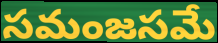
సమంజసమే